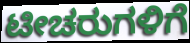
ಟೀಚರುಗಳಿಗೆ